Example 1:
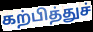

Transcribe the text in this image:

கற்பித்துச்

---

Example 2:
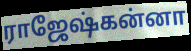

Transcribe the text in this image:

ராஜேஷ்கன்னா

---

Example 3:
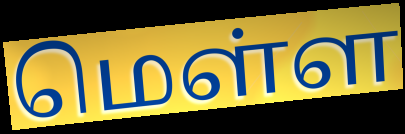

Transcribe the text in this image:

மெள்ள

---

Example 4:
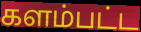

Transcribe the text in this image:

களம்பட்ட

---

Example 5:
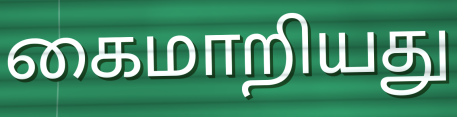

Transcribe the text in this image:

கைமாறியது